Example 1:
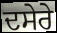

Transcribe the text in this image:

ਦਸੇਰੇ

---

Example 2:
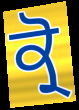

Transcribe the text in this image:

ਕ੍ਰੋ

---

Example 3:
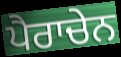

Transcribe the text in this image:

ਪੈਰਾਚੇਨ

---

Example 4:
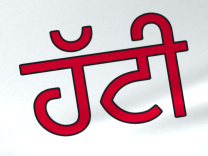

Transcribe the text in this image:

ਹੱਟੀ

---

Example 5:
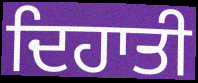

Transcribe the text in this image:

ਦਿਹਾਤੀ